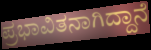
ಪ್ರಭಾವಿತನಾಗಿದ್ದಾನೆ